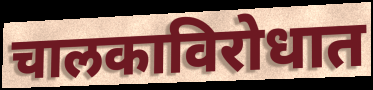
चालकाविरोधात